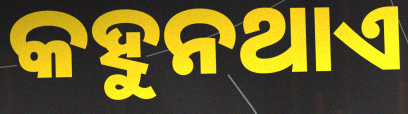
କହୁନଥାଏ